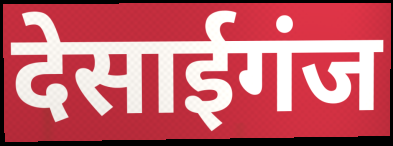
देसाईगंज